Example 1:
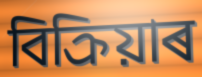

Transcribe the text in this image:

বিক্ৰিয়াৰ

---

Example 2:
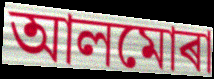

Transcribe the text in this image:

আলমোৰা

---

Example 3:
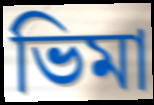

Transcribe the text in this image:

ভিমা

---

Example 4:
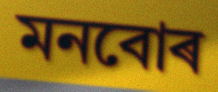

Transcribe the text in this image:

মনবোৰ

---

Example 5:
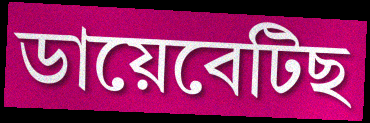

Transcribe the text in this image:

ডায়েবেটিছ